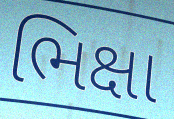
ભિક્ષા